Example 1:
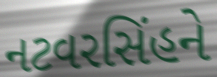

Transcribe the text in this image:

નટવરસિંહને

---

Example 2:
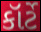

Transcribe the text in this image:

કૉર્ટે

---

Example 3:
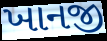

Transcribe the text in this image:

ખાનજી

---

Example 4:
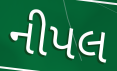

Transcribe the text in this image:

નીપલ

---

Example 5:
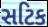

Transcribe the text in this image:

સટિક